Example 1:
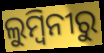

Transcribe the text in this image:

ଲୁମ୍ବିନୀରୁ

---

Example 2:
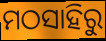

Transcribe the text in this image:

ମଠସାହିରୁ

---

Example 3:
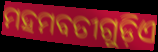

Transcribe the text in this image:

ମହମବତୀଗୁଡ଼ିଏ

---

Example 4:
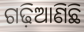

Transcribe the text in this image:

ଗଢ଼ିଆଣିଛି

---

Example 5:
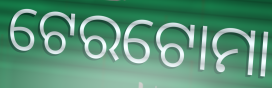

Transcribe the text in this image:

ଟେରଟୋମା